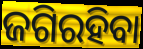
ଜଗିରହିବା